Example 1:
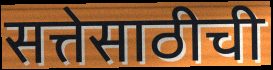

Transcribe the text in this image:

सत्तेसाठीची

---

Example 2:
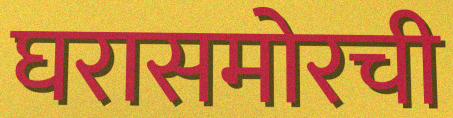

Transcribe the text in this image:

घरासमोरची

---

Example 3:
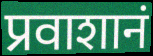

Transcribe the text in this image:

प्रवाशानं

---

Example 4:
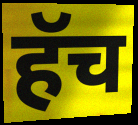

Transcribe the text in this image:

हॅच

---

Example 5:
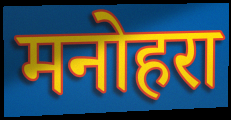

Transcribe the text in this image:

मनोहरा